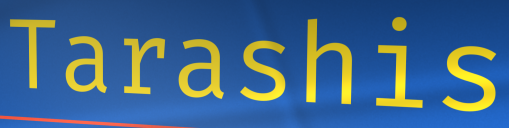
Tarashis